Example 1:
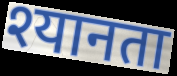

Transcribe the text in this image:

श्यानता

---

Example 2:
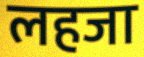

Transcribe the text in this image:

लहजा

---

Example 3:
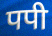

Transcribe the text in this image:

पपी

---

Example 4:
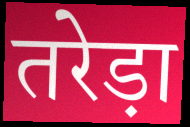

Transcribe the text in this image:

तरेड़ा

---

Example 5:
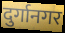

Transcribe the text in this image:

दुर्गानगर